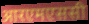
आरएमएससी